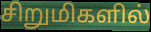
சிறுமிகளில்